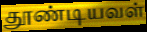
தூண்டியவள்